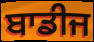
ਬਾਡੀਜ